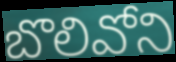
బొలివోని